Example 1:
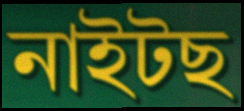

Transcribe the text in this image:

নাইটছ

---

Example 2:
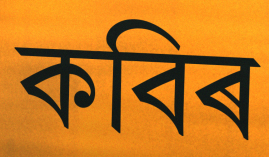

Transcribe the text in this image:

কবিৰ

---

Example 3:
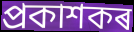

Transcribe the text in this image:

প্ৰকাশকৰ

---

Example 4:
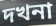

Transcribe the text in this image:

দখনা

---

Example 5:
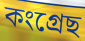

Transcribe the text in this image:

কংগ্ৰেছ